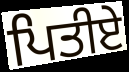
ਪਿਤੀਏ